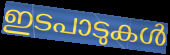
ഇടപാടുകൾ